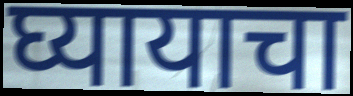
घ्यायाचा